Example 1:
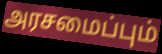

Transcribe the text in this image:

அரசமைப்பும்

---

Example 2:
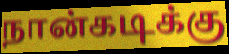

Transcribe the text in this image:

நான்கடிக்கு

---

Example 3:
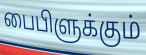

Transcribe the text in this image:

பைபிளுக்கும்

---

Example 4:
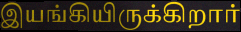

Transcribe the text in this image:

இயங்கியிருக்கிறார்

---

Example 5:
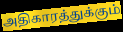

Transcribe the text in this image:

அதிகாரத்துக்கும்